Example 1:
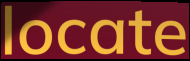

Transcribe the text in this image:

locate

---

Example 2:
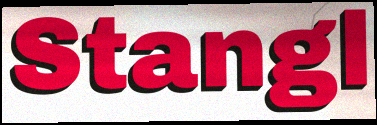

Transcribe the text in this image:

Stangl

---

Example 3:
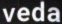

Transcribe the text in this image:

veda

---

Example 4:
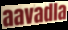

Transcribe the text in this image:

aavadla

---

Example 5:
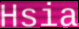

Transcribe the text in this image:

Hsia